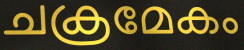
ചക്രമേകം